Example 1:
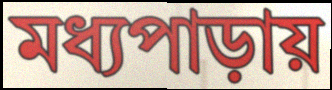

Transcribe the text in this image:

মধ্যপাড়ায়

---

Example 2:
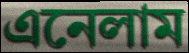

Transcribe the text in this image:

এনেলাম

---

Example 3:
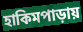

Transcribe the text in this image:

হাকিমপাড়ায়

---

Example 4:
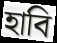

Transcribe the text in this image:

হাবি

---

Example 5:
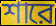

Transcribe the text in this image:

শারে